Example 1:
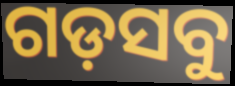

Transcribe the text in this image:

ଗଡ଼ସବୁ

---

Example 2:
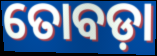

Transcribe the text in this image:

ତୋବଡ଼ା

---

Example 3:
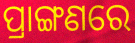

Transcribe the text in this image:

ପ୍ରାଙ୍ଗଣରେ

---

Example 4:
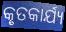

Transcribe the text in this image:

କୃତକାର୍ଯ୍ୟ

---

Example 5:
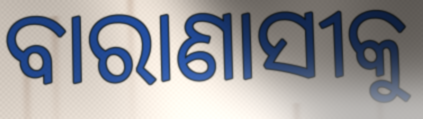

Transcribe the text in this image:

ବାରାଣାସୀକୁ